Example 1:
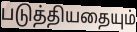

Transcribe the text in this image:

படுத்தியதையும்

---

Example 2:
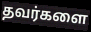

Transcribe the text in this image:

தவர்களை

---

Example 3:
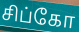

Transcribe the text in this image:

சிப்கோ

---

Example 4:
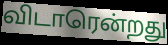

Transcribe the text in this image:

விடாரென்றது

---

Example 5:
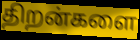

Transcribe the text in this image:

திறன்களை